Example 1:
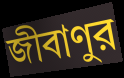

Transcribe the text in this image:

জীবাণুর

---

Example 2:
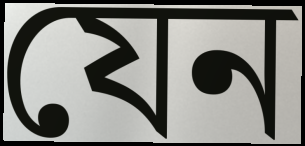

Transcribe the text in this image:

যেন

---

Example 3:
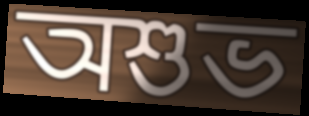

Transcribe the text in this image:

অশুভ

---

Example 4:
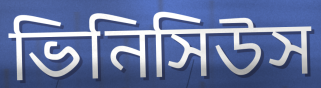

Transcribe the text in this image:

ভিনিসিউস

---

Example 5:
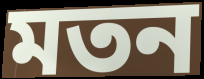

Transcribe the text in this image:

মতন